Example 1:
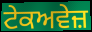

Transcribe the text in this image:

ਟੇਕਅਵੇਜ਼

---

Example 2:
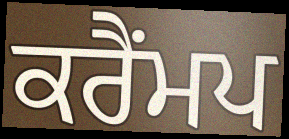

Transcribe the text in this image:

ਕਰੈਂਮਪ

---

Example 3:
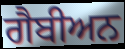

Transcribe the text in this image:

ਗੈਬੀਅਨ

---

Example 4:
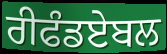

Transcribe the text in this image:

ਰੀਫੰਡਏਬਲ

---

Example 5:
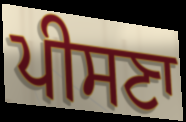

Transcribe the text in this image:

ਪੀਸਣਾ